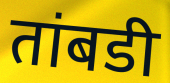
तांबडी